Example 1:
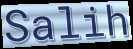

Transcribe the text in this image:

Salih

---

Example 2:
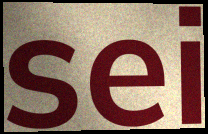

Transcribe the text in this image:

sei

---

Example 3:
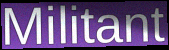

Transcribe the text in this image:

Militant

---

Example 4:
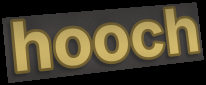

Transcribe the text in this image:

hooch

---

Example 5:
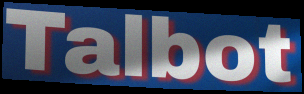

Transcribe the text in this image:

Talbot